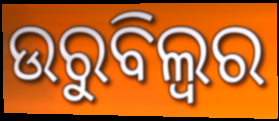
ଉରୁବିଲ୍ଵର